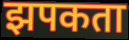
झपकता